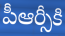
పీఆర్సీకి